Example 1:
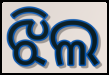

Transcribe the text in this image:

ଝିଲ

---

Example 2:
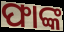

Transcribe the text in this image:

ଫାଙ୍କ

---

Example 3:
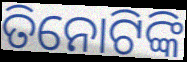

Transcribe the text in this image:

ତିନୋଟିଙ୍କି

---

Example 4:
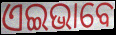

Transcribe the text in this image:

ଏଇଭାବେ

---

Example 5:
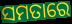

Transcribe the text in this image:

ସମତାରେ